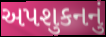
અપશુકનનું